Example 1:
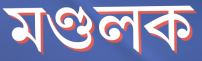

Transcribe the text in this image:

মণ্ডলক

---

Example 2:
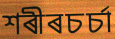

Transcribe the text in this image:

শৰীৰচৰ্চা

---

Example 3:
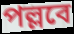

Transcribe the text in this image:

পল্লবে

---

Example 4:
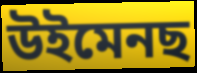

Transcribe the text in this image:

উইমেনছ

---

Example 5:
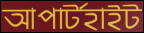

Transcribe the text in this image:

আপাৰ্টহাইট